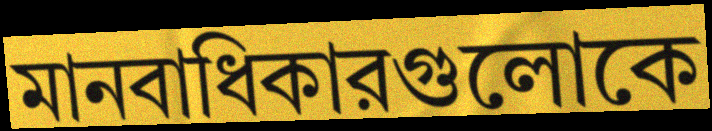
মানবাধিকারগুলোকে